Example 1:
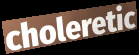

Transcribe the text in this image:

choleretic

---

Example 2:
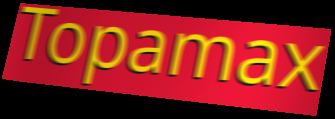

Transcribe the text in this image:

Topamax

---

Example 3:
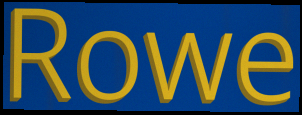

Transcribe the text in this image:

Rowe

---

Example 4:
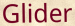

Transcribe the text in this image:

Glider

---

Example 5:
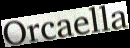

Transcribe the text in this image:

Orcaella